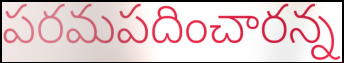
పరమపదించారన్న